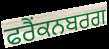
ਫਰੈਂਕਨਬਰਗ